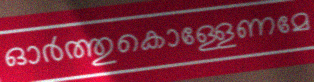
ഓർത്തുകൊള്ളേണമേ